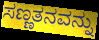
ಸಣ್ಣತನವನ್ನು